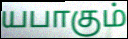
யபாகும்